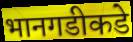
भानगडीकडे